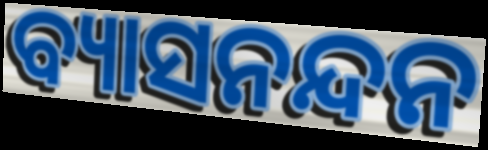
ବ୍ୟାସନନ୍ଦନ